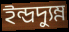
ইন্দ্রদ্যুম্ন